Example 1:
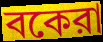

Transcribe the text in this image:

বকেরা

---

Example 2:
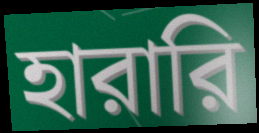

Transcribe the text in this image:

হারারি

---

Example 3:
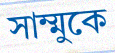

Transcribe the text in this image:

সাম্মুকে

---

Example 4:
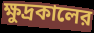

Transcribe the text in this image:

ক্ষুদ্রকালের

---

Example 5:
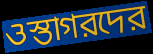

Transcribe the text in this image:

ওস্তাগরদের